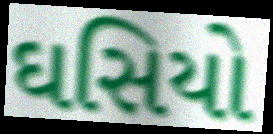
ઘસિયો